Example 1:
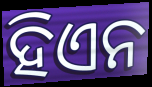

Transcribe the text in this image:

ହିଏନ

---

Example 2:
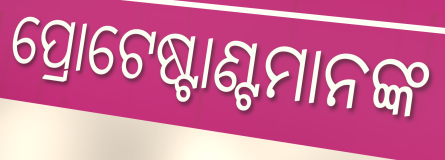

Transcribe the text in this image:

ପ୍ରୋଟେଷ୍ଟାଣ୍ଟମାନଙ୍କ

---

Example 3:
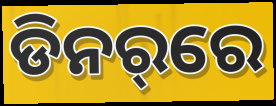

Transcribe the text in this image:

ଡିନର୍‌ରେ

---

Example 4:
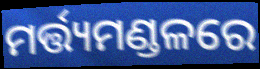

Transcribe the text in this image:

ମର୍ତ୍ତ୍ୟମଣ୍ଡଳରେ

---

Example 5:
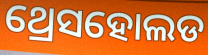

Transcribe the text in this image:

ଥ୍ରେସହୋଲଡ